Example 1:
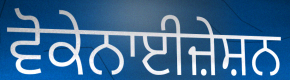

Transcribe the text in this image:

ਵੋਕੇਨਾਈਜ਼ੇਸ਼ਨ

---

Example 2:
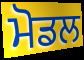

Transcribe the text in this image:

ਮੋਡਲ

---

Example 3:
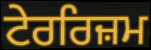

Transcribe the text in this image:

ਟੇਰਰਿਜ਼ਮ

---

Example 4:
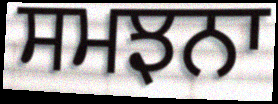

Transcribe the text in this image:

ਸਮਝਨਾ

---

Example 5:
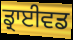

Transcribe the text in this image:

ਡ੍ਰਾਈਵਡ